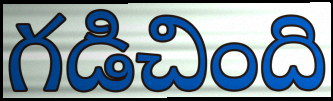
గడిచింది